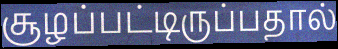
சூழப்பட்டிருப்பதால்